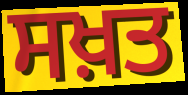
ਸਖ਼ਤ